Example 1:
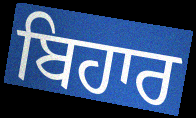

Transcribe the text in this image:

ਬਿਹਾਰ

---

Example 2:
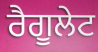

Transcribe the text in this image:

ਰੈਗੂਲੇਟ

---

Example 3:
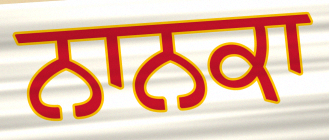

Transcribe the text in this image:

ਨਾਨਕਾ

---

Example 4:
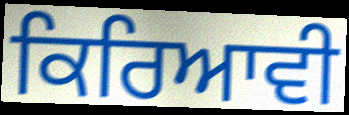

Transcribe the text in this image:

ਕਿਰਿਆਵੀ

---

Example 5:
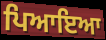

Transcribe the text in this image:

ਪਿਆਇਆ